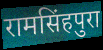
रामसिंहपुरा